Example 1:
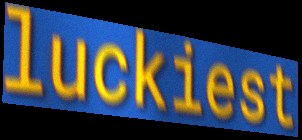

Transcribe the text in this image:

luckiest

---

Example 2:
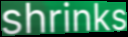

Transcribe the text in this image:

shrinks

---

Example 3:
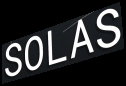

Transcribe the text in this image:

SOLAS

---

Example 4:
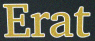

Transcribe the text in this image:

Erat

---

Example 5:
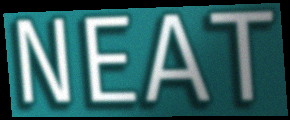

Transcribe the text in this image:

NEAT